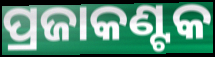
ପ୍ରଜାକଣ୍ଟକ